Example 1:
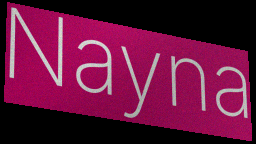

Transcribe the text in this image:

Nayna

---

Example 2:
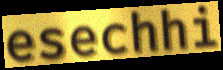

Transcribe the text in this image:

esechhi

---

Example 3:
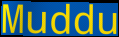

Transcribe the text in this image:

Muddu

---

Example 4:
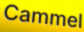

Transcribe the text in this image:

Cammel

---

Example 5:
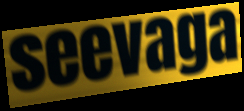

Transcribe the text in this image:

seevaga